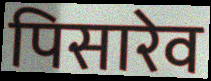
पिसारेव